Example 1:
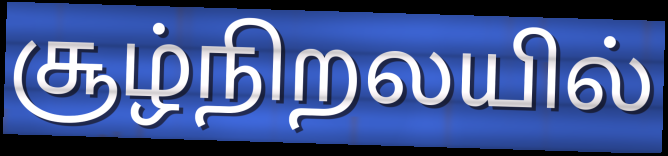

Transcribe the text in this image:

சூழ்நிறலயில்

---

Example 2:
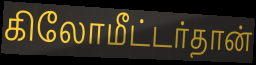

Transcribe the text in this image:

கிலோமீட்டர்தான்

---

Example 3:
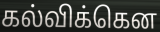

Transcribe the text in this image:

கல்விக்கென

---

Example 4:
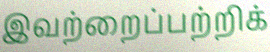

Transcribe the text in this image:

இவற்றைப்பற்றிக்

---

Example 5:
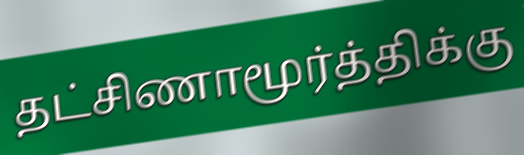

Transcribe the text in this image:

தட்சிணாமூர்த்திக்கு